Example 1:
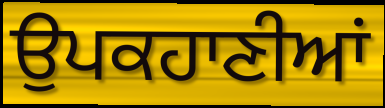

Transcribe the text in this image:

ਉਪਕਹਾਣੀਆਂ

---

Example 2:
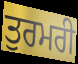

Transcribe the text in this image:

ਤੁਰਮਰੀ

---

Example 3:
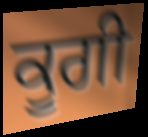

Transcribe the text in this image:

ਕੂਗੀ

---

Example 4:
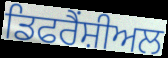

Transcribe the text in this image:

ਡਿਫਰੈਂਸ਼ੀਅਲ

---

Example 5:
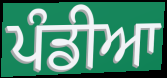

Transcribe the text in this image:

ਪੰਡੀਆ